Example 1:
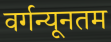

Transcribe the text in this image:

वर्गन्यूनतम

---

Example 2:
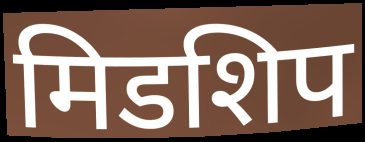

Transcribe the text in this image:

मिडशिप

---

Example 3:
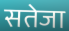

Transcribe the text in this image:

सतेजा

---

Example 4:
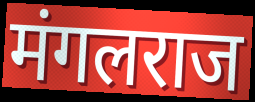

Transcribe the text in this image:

मंगलराज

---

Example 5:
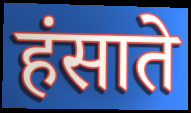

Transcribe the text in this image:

हंसाते